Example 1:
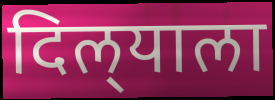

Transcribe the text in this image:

दिल्याला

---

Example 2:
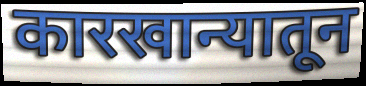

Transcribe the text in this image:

कारखान्यातून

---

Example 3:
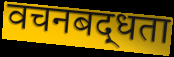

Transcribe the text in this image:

वचनबद्धता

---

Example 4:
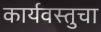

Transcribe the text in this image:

कार्यवस्तुचा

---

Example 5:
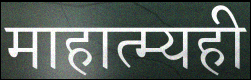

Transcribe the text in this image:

माहात्म्यही